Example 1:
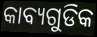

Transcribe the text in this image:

କାବ୍ୟଗୁଡିକ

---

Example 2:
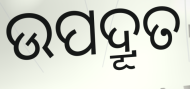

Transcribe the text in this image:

ଉପଦ୍ରୂତ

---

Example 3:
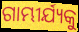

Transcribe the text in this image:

ଗାମ୍ଭୀର୍ଯ୍ୟକୁ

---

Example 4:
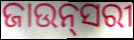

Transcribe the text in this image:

ଜାଉନ୍‌ସରୀ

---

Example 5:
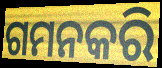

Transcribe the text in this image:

ଗମନକରି